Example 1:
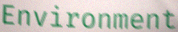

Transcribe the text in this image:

Environment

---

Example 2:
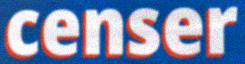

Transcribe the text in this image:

censer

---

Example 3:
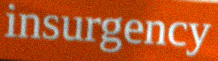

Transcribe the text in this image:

insurgency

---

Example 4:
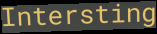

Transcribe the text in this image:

Intersting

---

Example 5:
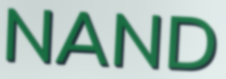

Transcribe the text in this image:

NAND